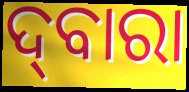
ଦ୍‌ବାରା